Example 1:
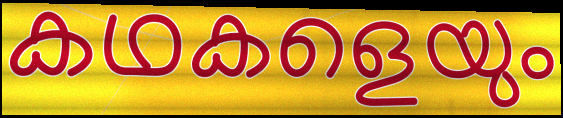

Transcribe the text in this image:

കഥകളെയും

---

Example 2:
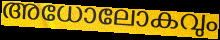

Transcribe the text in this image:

അധോലോകവും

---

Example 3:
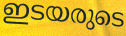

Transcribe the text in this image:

ഇടയരുടെ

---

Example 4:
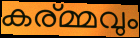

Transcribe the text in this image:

കര്മ്മവും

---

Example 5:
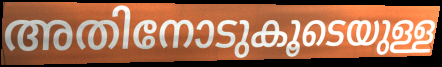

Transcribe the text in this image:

അതിനോടുകൂടെയുള്ള